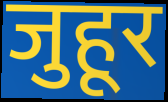
जुहूर